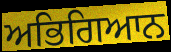
ਅਭਿਗਿਆਨ